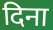
दिना